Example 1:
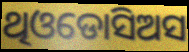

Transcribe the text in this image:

ଥିଓଡୋସିଅସ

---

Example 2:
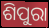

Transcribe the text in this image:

ଶିପୁରା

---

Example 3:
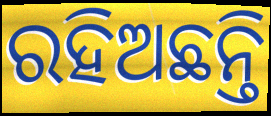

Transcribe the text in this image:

ରହିଅଛନ୍ତି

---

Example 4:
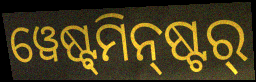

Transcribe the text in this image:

ୱେଷ୍ଟ୍‌ମିନ୍‌ଷ୍ଟର୍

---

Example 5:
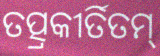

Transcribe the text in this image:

ତତ୍ପ୍ରକୀର୍ତିତମ୍